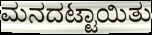
ಮನದಟ್ಟಾಯಿತು